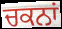
ਚਕਨਾਂ